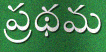
ప్రథమ